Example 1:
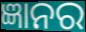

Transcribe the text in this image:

ଜ୍ଞାନର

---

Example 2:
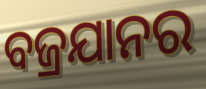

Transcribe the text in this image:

ବଜ୍ରଯାନର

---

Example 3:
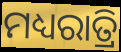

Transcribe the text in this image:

ମଧ୍ୟରାତ୍ରି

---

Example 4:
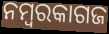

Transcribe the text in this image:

ନମ୍ବରକାଗଜ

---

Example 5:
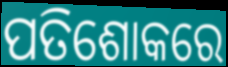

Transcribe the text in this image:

ପତିଶୋକରେ